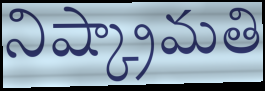
నిష్క్రామతి